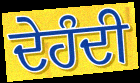
ਦੇਹੰਦੀ